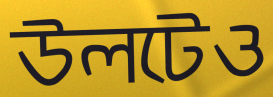
উলটেও